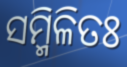
ସମ୍ମିଳିତଃ